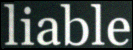
liable